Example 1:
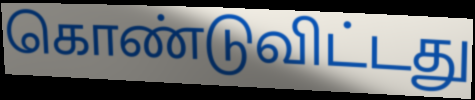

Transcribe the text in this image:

கொண்டுவிட்டது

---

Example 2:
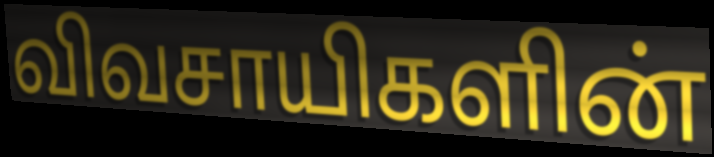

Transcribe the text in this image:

விவசாயிகளின்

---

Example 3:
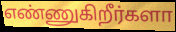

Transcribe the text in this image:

எண்ணுகிறீர்களா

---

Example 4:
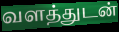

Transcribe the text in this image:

வளத்துடன்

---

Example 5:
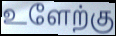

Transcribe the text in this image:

உளேற்கு